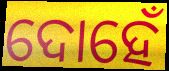
ଦୋହେଁ